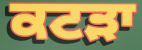
ਕਟੜਾ